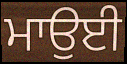
ਮਾਉਈ